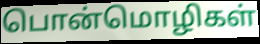
பொன்மொழிகள்